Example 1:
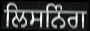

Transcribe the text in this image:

ਲਿਸਨਿੰਗ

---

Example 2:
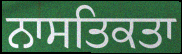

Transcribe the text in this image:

ਨਾਸਤਿਕਤਾ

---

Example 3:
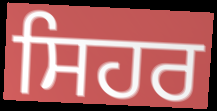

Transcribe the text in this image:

ਸਿਹਰ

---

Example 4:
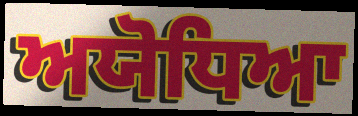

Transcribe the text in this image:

ਅਯੋਧਿਆ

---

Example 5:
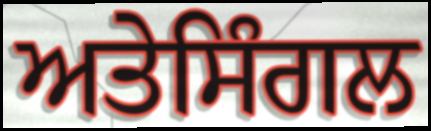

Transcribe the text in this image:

ਅਤੇਸਿੰਗਲ